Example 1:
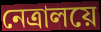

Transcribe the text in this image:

নেত্রালয়ে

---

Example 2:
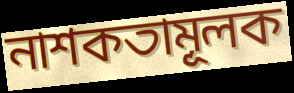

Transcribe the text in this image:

নাশকতামূলক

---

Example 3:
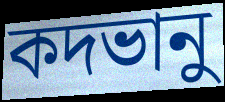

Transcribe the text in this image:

কদভানু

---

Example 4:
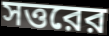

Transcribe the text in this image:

সত্তরের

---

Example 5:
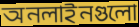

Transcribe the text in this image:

অনলাইনগুলো